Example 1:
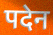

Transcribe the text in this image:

पदेन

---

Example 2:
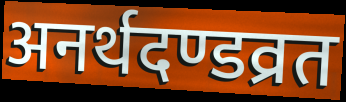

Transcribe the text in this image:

अनर्थदण्डव्रत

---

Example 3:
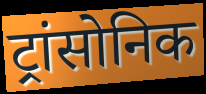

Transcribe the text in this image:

ट्रांसोनिक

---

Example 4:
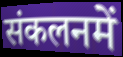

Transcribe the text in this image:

संकलनमें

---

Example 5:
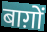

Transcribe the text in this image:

बाग़ों